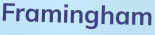
Framingham